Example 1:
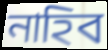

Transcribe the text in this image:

নাহিব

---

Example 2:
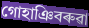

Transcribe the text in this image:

গোহাঞিবৰুৱা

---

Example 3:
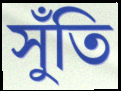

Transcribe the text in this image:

সুঁতি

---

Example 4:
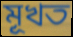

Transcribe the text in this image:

মূখত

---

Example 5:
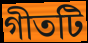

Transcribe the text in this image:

গীতটি